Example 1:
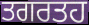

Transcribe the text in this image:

ਤਗਰਤਹ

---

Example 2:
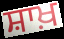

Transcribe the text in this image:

ਸ਼ਾਖ਼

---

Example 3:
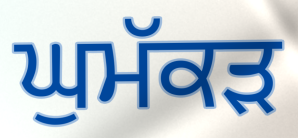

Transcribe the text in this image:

ਘੁਮੱਕਡ਼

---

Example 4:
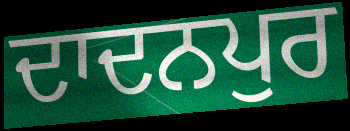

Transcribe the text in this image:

ਦਾਦਨਪੁਰ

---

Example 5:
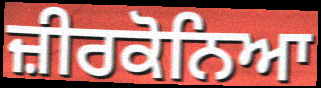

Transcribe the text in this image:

ਜ਼ੀਰਕੋਨਿਆ